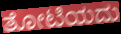
ತೋಟಿಯದು